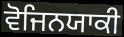
ਵੋਜਿਨਯਾਕੀ